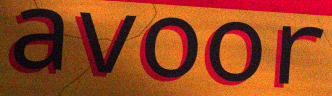
avoor